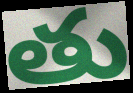
తు